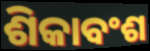
ଶିକାବଂଶ